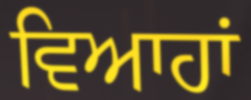
ਵਿਆਹਾਂ